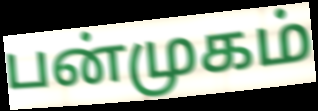
பன்முகம்